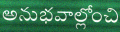
అనుభవాల్లోంచి